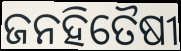
ଜନହିତୈଷୀ